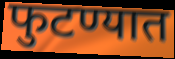
फुटण्यात